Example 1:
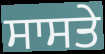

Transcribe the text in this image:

ਸਾਸਤੇ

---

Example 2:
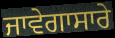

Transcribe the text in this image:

ਜਾਵੇਗਾਸਾਰੇ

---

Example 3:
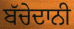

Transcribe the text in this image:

ਬੱਚੇਦਾਨੀ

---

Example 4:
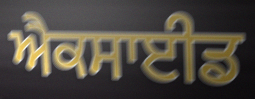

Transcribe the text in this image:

ਐਕਸਾਈਡ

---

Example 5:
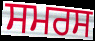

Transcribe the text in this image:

ਸਮਰਸ